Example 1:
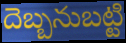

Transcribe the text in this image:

దెబ్బనుబట్టి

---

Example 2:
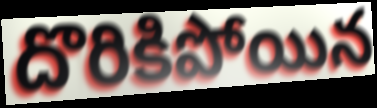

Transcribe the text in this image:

దొరికిపోయిన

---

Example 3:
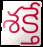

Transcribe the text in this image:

శక్తే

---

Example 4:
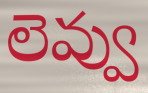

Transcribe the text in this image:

లెవ్వు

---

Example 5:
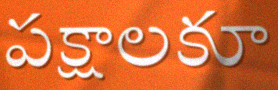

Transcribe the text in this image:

పక్షాలకూ